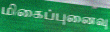
மிகைப்புனைவு